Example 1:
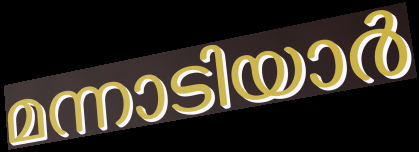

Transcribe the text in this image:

മന്നാടിയാർ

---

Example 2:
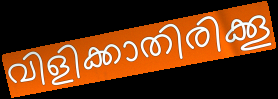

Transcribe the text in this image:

വിളിക്കാതിരിക്കൂ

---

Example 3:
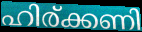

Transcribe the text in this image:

ഹിര്ക്കണി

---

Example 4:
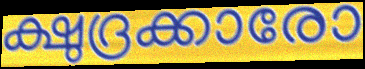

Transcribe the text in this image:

ക്ഷുദ്രക്കാരോ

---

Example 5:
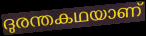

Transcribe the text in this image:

ദുരന്തകഥയാണ്